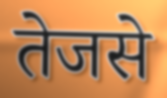
तेजसे